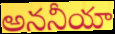
అననీయా